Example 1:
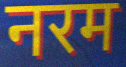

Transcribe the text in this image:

नरम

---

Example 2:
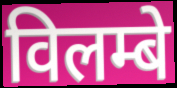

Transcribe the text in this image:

विलम्बे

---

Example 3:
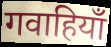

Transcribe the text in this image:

गवाहियाँ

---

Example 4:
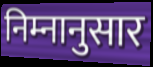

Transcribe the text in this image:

निम्‍नानुसार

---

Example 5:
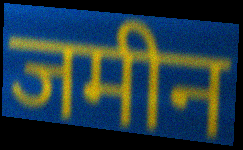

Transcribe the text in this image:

जमीन